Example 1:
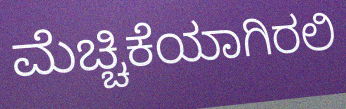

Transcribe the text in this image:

ಮೆಚ್ಚಿಕೆಯಾಗಿರಲಿ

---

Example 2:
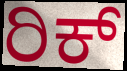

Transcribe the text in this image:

ರಿಕ್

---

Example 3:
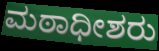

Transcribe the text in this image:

ಮಠಾಧೀಶರು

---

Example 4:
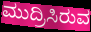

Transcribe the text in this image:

ಮುದ್ರಿಸಿರುವ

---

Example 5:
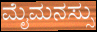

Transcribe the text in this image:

ಮೈಮನಸ್ಸು